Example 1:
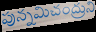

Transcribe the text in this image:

పున్నమిచంద్రుని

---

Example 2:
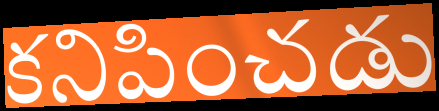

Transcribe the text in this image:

కనిపించడు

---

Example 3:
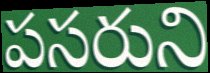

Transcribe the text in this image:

పసరుని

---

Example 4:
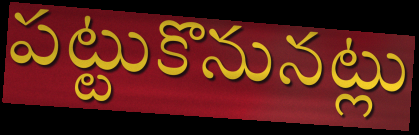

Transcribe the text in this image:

పట్టుకొనునట్లు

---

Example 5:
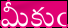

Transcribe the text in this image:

మీకుఁ